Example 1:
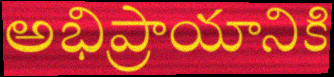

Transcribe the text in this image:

అభిప్రాయానికి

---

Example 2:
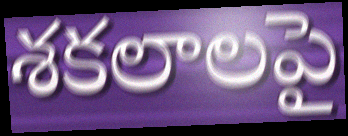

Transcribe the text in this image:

శకలాలపై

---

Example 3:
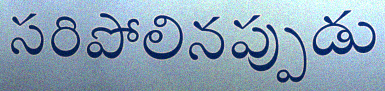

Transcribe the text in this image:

సరిపోలినప్పుడు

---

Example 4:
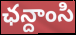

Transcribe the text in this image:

ఛన్దాంసి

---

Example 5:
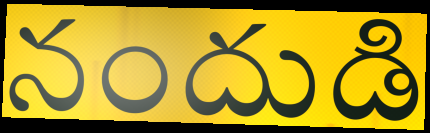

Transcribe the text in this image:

నందుడి